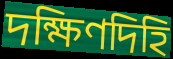
দক্ষিণদিহি